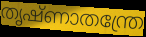
തൃഷ്ണാതന്ത്രേ